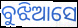
ବୁଝିଆସେ